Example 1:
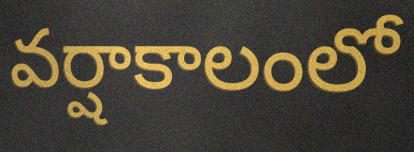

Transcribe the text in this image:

వర్షాకాలంలో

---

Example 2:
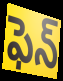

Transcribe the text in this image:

ఫెన్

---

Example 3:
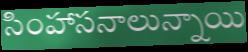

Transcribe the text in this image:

సింహాసనాలున్నాయి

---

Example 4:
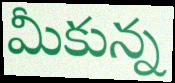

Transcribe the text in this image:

మీకున్న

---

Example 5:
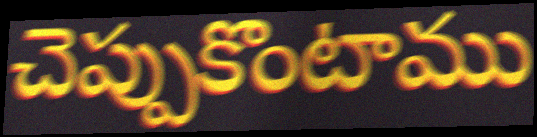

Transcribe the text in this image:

చెప్పుకొంటాము